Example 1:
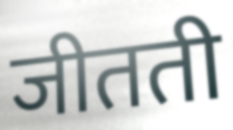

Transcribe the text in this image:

जीतती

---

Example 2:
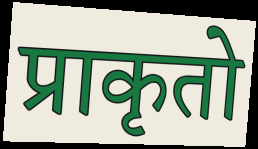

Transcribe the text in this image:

प्राकृतो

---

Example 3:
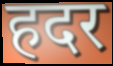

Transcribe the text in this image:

हदर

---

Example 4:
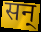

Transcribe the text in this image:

सन्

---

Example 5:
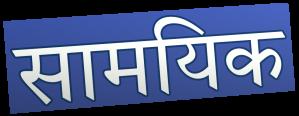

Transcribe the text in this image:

सामयिक